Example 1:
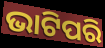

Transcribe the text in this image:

ଭାଟିପରି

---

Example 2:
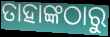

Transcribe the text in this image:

ତାହାଙ୍କଠାରୁ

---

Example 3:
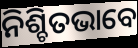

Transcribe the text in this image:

ନିଶ୍ଚିତଭାବେ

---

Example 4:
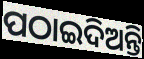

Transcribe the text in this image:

ପଠାଇଦିଅନ୍ତି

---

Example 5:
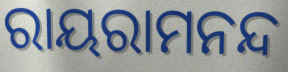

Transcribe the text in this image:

ରାୟରାମନନ୍ଦ